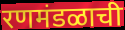
रणमंडळाची